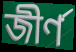
জীৰ্ণ